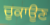
ਚੁਕਾਉਣ